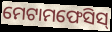
ମେଟାମଫେସିସ୍